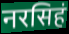
नरसिहं